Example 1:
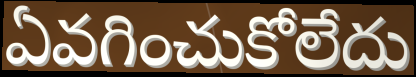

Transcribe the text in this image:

ఏవగించుకోలేదు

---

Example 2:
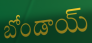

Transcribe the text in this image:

బోండాయ్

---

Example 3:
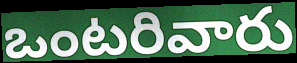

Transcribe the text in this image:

ఒంటరివారు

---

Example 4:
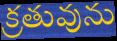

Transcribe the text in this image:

క్రతువును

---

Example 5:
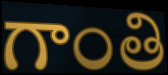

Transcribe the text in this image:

గాంతి